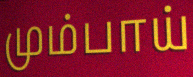
மும்பாய்